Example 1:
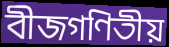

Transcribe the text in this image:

বীজগণিতীয়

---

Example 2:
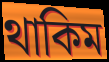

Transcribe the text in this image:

থাকিম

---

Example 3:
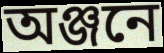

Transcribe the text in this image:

অঞ্জনে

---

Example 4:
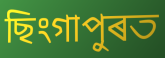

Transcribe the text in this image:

ছিংগাপুৰত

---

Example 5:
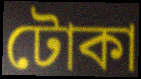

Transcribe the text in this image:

টোকা